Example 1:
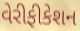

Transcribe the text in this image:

વેરીફીકેશન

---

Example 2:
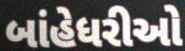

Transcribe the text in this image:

બાંહેધરીઓ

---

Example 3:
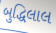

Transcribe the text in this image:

બુદ્ધિલાલ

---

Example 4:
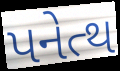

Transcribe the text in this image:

પનેત્થ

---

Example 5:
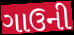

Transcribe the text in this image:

ગાઉની